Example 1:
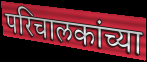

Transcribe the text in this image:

परिचालकांच्या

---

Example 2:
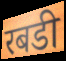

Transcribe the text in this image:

रबडी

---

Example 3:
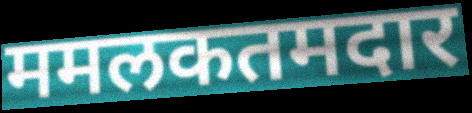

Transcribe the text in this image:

ममलकतमदार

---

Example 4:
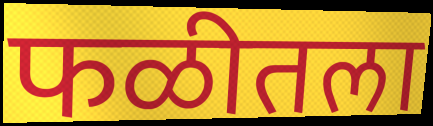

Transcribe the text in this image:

फळीतला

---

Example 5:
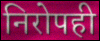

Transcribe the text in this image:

निरोपही